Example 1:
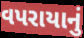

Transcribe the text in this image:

વપરાયાનું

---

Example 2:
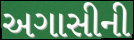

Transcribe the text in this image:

અગાસીની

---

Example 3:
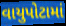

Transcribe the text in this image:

વાયુપોટામાં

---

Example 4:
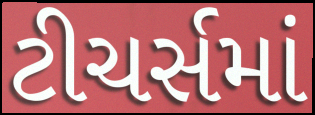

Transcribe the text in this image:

ટીચર્સમાં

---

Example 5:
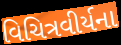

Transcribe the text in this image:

વિચિત્રવીર્યના